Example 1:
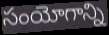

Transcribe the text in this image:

సంయోగాన్ని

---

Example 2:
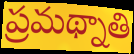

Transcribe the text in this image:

ప్రమథ్నాతి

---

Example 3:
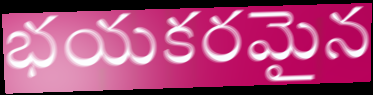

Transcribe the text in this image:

భయకరమైన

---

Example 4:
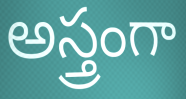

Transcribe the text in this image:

అస్త్రంగా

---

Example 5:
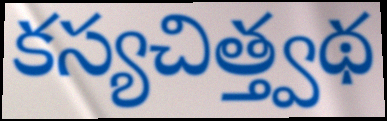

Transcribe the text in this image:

కస్యచిత్త్వథ